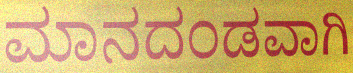
ಮಾನದಂಡವಾಗಿ